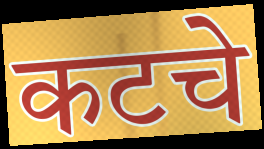
कटचे